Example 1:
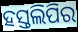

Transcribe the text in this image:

ହସ୍ତଲିପିର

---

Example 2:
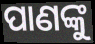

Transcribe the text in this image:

ପାଣଙ୍କୁ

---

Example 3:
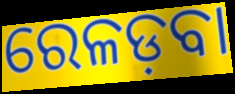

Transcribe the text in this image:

ରେଳଡ଼ବା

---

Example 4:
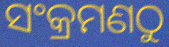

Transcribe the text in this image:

ସଂକ୍ରମଣଠୁ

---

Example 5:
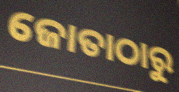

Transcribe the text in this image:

ଜୋତାଠାରୁ